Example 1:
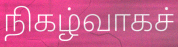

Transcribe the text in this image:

நிகழ்வாகச்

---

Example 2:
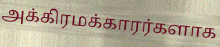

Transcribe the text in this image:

அக்கிரமக்காரர்களாக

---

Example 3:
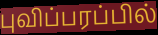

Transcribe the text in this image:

புவிப்பரப்பில்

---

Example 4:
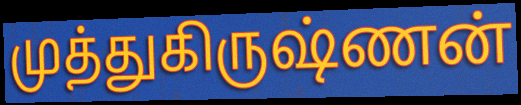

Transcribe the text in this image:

முத்துகிருஷ்ணன்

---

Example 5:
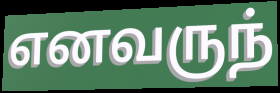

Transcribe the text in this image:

எனவருந்